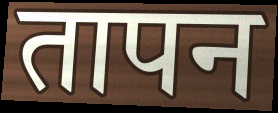
तापन